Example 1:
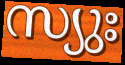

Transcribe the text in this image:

സ്യുഃ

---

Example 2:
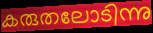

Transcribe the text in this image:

കരുതലോടിന്നു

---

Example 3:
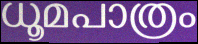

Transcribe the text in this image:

ധൂമപാത്രം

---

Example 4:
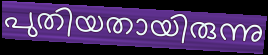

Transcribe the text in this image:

പുതിയതായിരുന്നു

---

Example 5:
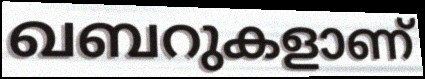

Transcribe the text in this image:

ഖബറുകളാണ്